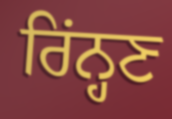
ਰਿਂਨ੍ਹਣ